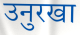
उनुरखा